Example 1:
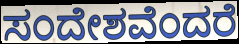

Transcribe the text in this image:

ಸಂದೇಶವೆಂದರೆ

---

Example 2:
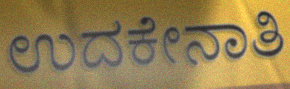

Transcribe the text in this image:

ಉದಕೇನಾತಿ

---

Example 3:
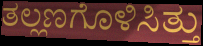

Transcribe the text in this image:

ತಲ್ಲಣಗೊಳಿಸಿತ್ತು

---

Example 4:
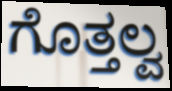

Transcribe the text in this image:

ಗೊತ್ತಲ್ವ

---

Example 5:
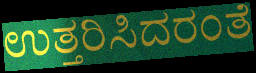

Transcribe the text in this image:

ಉತ್ತರಿಸಿದರಂತೆ